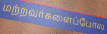
மற்றவர்களைப்போல